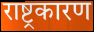
राष्ट्रकारण